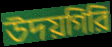
উদয়গিরি